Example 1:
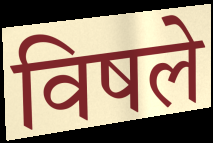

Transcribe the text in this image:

विषले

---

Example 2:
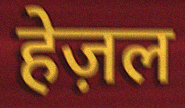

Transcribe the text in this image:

हेज़ल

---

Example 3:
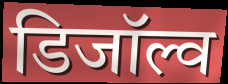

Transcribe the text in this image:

डिजॉल्व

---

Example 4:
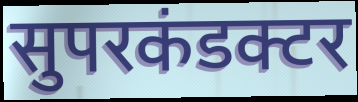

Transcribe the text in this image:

सुपरकंडक्टर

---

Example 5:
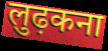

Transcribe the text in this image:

लुढ़कना